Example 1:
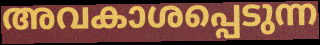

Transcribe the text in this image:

അവകാശപ്പെടുന്ന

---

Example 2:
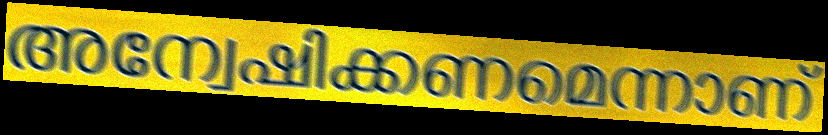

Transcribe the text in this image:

അന്വേഷിക്കണമെന്നാണ്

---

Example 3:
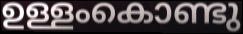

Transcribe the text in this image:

ഉള്ളംകൊണ്ടു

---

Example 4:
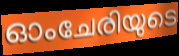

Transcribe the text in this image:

ഓംചേരിയുടെ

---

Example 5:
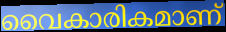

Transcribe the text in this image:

വൈകാരികമാണ്